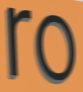
ro